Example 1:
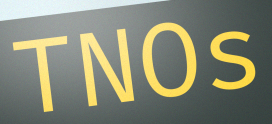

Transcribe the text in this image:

TNOs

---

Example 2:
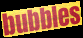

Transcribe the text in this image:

bubbles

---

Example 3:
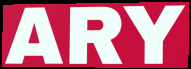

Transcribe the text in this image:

ARY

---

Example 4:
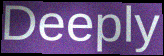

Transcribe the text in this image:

Deeply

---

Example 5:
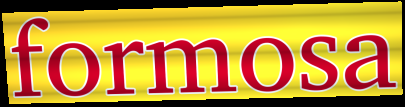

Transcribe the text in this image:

formosa